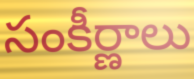
సంకీర్ణాలు